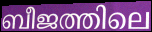
ബീജത്തിലെ